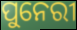
ପୁନେରୀ